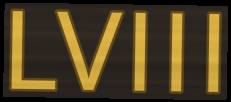
LVIII